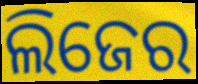
ଲିଜେର